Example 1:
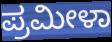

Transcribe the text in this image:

ಪ್ರಮೀಳಾ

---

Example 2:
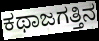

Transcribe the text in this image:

ಕಥಾಜಗತ್ತಿನ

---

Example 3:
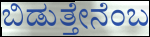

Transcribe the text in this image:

ಬಿಡುತ್ತೇನೆಂಬ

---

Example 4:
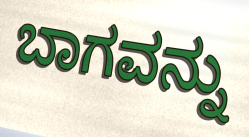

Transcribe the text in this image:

ಬಾಗವನ್ನು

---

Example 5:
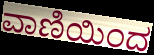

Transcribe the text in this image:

ವಾಣಿಯಿಂದ